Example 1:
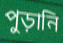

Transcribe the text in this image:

পুড়ানি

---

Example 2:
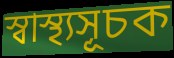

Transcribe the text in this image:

স্বাস্থ্যসূচক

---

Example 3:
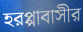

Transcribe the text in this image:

হরপ্পাবাসীর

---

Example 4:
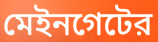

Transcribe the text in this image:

মেইনগেটের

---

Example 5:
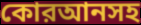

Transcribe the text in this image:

কোরআনসহ